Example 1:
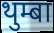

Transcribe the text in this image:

थुम्बा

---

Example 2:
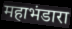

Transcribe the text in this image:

महाभंडारा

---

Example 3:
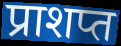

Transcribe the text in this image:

प्राशप्त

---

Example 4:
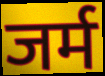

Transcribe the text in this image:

जर्म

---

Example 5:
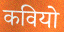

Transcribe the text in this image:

कवियो